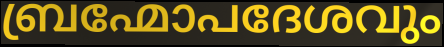
ബ്രഹ്മോപദേശവും